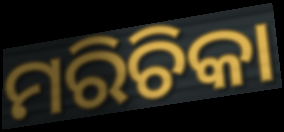
ମରିଚିକା